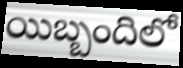
యిబ్బందిలో